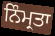
ਨਿੰਮ੍ਰਤਾ